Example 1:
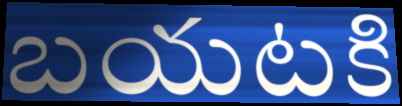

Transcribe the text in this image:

బయటకి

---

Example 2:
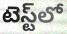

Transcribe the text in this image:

టెస్ట్‌లో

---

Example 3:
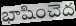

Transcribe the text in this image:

భాషించెద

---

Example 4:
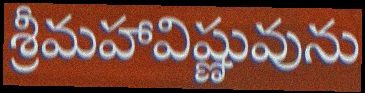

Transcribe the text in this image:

శ్రీమహావిష్ణువును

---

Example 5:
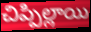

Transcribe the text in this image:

చిప్పిల్లాయి